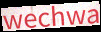
wechwa